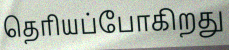
தெரியப்போகிறது